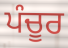
ਪੰਚੂਰ